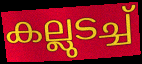
കല്ലുടച്ച്